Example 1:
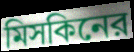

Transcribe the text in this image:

মিসকিনের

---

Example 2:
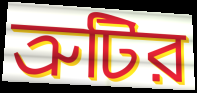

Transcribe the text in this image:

ত্রুটির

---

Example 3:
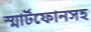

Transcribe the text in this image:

স্মার্টফোনসহ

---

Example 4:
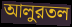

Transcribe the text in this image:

আলুরতল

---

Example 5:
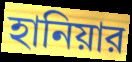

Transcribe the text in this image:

হানিয়ার